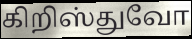
கிறிஸ்துவோ